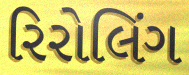
રિરોલિંગ